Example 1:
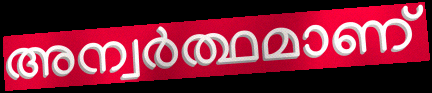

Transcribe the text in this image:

അന്വർത്ഥമാണ്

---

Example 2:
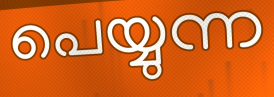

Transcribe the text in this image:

പെയ്യുന്ന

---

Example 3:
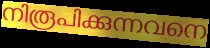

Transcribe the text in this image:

നിരൂപിക്കുന്നവനെ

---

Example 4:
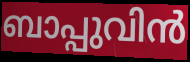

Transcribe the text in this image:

ബാപ്പുവിൻ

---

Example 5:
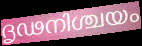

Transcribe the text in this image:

ദൃഢനിശ്ചയം